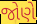
જોણે